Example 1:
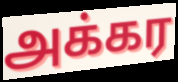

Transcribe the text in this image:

அக்கர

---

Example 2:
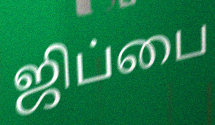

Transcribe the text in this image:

ஜிப்பை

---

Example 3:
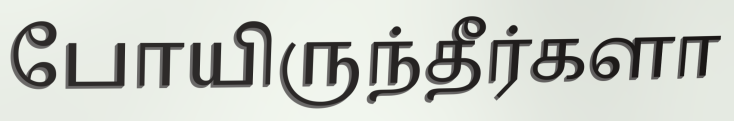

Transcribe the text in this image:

போயிருந்தீர்களா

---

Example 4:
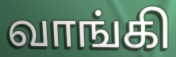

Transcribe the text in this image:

வாங்கி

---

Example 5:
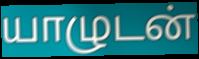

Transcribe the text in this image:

யாழுடன்